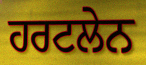
ਹਰਟਲੇਨ